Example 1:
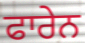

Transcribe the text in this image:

ਫਾਰੇਨ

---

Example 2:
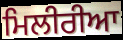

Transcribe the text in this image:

ਮਿਲੀਰੀਆ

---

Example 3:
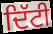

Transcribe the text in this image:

ਦਿੱਟੀ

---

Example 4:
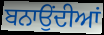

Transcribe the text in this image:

ਬਨਾਉਂਦੀਆਂ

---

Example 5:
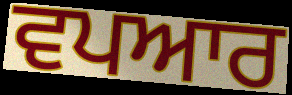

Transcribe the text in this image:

ਵਪਆਰ